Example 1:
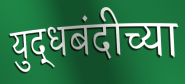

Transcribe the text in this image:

युद्धबंदीच्या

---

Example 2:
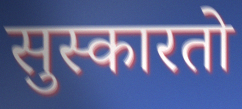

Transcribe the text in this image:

सुस्कारतो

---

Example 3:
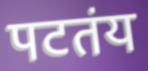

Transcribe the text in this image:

पटतंय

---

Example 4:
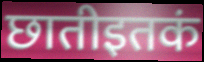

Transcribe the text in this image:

छातीइतकं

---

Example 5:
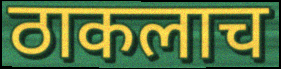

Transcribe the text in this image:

ठाकलाच